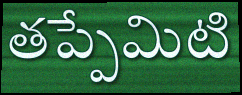
తప్పేమిటి